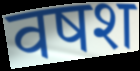
वषश